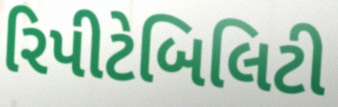
રિપીટેબિલિટી